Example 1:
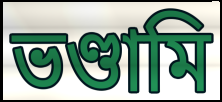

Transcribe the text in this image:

ভণ্ডামি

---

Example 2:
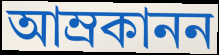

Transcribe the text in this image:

আম্রকানন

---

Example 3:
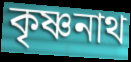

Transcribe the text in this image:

কৃষ্ণনাথ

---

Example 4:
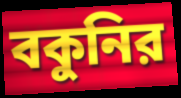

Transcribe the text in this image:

বকুনির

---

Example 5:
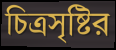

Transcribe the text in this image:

চিত্রসৃষ্টির